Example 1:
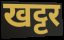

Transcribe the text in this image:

खट्टर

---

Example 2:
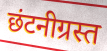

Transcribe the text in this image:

छंटनीग्रस्त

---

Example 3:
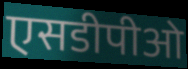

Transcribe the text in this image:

एसडीपीओ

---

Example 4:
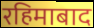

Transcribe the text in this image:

रहिमाबाद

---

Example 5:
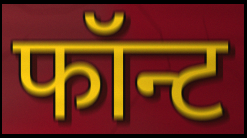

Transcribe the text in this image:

फॉन्ट